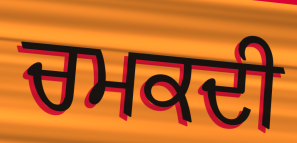
ਚਮਕਦੀ